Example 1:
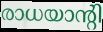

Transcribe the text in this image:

രാധയാന്റി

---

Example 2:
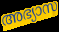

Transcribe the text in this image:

അഭ്യാസ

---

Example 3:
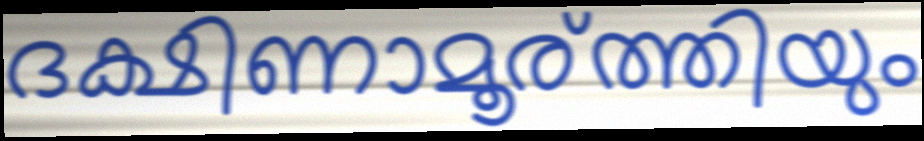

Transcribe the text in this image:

ദക്ഷിണാമൂര്ത്തിയും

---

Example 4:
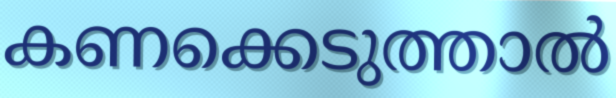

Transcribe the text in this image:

കണക്കെടുത്താൽ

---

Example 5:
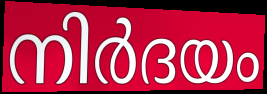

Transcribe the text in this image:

നിർദയം